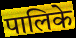
पालिके